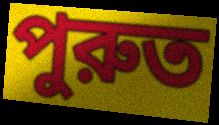
পুরুত